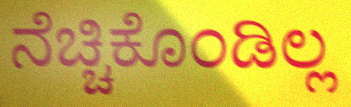
ನೆಚ್ಚಿಕೊಂಡಿಲ್ಲ